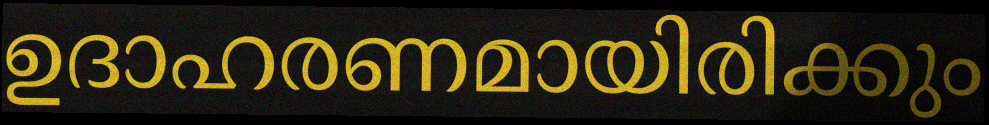
ഉദാഹരണമായിരിക്കും